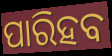
ପାରିହବ